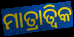
ମାତ୍ରାତ୍ଵିକ